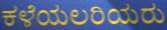
ಕಳೆಯಲರಿಯರು